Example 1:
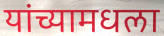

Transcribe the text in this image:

यांच्यामधला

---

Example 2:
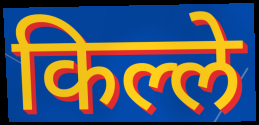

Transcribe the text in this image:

किल्ले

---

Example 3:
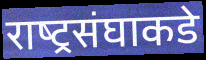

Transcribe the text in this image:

राष्ट्रसंघाकडे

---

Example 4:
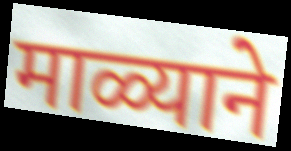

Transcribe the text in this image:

माळ्याने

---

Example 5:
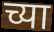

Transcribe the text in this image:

च्या